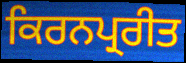
ਕਿਰਨਪ੍ਰਰੀਤ